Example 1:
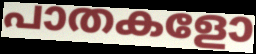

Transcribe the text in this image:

പാതകളോ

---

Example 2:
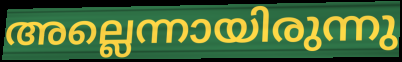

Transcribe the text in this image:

അല്ലെന്നായിരുന്നു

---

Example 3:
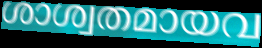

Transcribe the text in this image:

ശാശ്വതമായവ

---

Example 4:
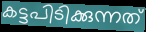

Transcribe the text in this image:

കട്ടപിടിക്കുന്നത്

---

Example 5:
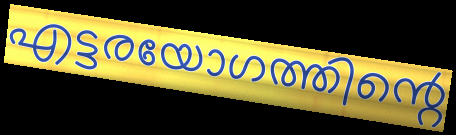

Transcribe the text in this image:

എട്ടരയോഗത്തിന്റെ